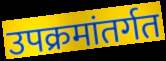
उपक्रमांतर्गत